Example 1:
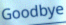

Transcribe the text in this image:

Goodbye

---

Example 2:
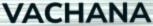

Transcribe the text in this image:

VACHANA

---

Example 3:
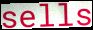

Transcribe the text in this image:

sells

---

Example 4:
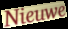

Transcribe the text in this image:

Nieuwe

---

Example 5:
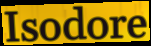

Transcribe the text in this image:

Isodore